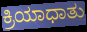
ಕ್ರಿಯಾಧಾತು